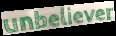
unbeliever